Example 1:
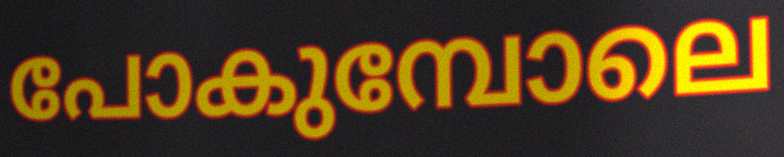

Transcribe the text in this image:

പോകുമ്പോലെ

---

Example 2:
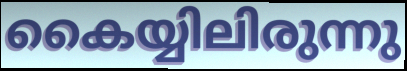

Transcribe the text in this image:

കൈയ്യിലിരുന്നു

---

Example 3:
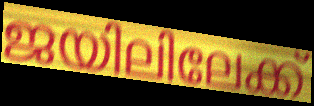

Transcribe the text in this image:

ജയിലിലേക്ക്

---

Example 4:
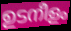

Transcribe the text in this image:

ഉടനീളം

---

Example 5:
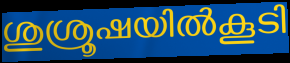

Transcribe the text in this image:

ശുശ്രൂഷയിൽകൂടി